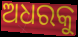
ଅଧରକୁ